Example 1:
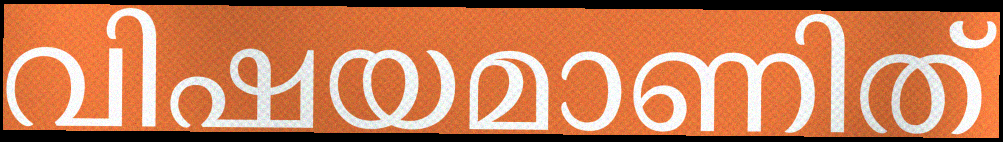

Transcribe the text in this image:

വിഷയമാണിത്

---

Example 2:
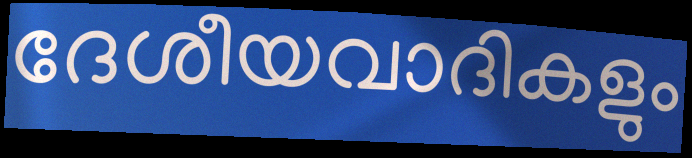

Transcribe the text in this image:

ദേശീയവാദികളും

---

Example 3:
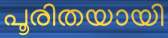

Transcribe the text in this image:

പൂരിതയായി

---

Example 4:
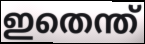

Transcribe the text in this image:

ഇതെന്ത്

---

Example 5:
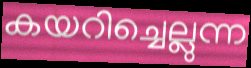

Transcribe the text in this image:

കയറിച്ചെല്ലുന്ന